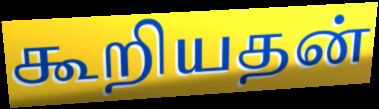
கூறியதன்